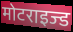
मोटराइज्ड